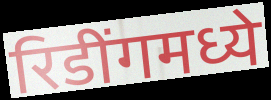
रिडींगमध्ये